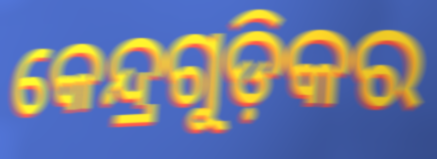
କେନ୍ଦ୍ରଗୁଡ଼ିକର